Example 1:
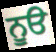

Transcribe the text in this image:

ਨੂੳ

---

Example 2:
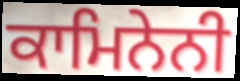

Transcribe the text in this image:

ਕਾਮਿਨੇਨੀ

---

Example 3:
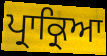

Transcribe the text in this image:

ਪ੍ਰਾਕ੍ਰਿਆ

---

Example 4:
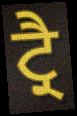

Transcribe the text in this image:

ਟ੍ਰੈ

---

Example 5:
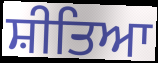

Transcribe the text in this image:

ਸ਼ੀਤਿਆ